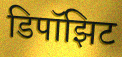
डिपॉझिट